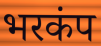
भरकंप